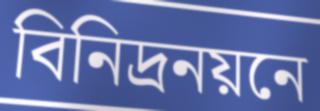
বিনিদ্রনয়নে